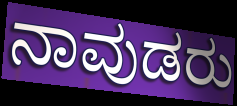
ನಾವುಡರು